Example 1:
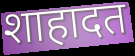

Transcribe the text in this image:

शाहादत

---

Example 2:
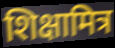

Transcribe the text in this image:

शिक्षामित्र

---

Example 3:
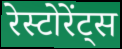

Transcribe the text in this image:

रेस्टोरेंट्स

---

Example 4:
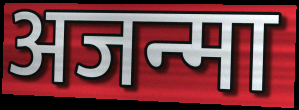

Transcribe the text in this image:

अजन्मा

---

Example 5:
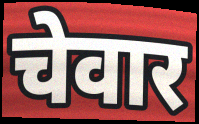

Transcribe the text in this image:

चेवार